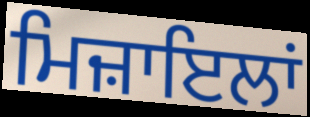
ਮਿਜ਼ਾਇਲਾਂ